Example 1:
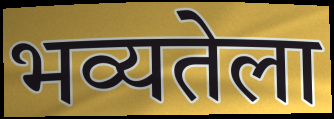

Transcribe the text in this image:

भव्यतेला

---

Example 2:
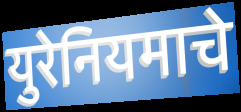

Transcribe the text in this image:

युरेनियमाचे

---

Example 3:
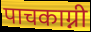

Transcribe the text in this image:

पाचकाग्नी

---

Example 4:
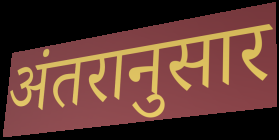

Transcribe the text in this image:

अंतरानुसार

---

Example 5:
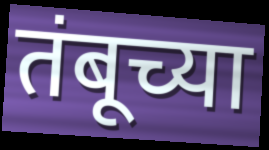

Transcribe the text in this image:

तंबूच्या